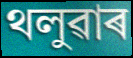
থলুৱাৰ